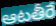
ఆటతీరే